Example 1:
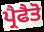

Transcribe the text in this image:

ਪ੍ਰੈਫੈਤੋ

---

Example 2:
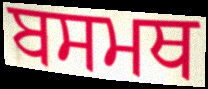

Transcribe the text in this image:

ਬਸਮਥ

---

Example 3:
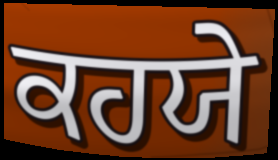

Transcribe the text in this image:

ਕਹਯੇ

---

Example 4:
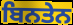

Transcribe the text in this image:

ਬਿਨਤੇਨ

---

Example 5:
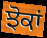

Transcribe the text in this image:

ਝੋਕਾਂ